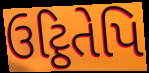
ઉટ્ઠિતેપિ